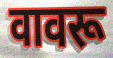
वावरू